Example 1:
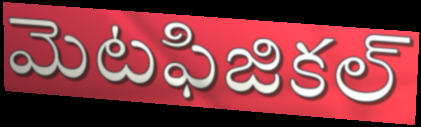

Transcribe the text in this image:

మెటఫిజికల్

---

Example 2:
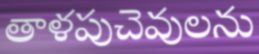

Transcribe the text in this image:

తాళపుచెవులను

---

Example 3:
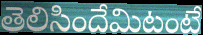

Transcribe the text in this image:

తెలిసిందేమిటంటే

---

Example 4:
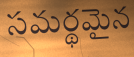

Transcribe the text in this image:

సమర్థమైన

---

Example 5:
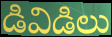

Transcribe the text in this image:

డివిడిలు